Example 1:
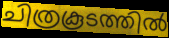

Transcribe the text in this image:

ചിത്രകൂടത്തിൽ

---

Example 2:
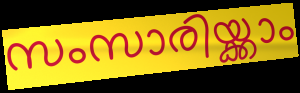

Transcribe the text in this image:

സംസാരിയ്ക്കാം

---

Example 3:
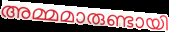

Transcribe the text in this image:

അമ്മമാരുണ്ടായി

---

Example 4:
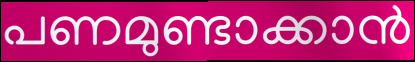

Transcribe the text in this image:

പണമുണ്ടാക്കാൻ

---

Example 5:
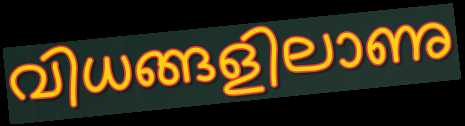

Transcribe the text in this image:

വിധങ്ങളിലാണു